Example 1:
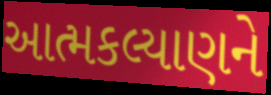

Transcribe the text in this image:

આત્મકલ્યાણને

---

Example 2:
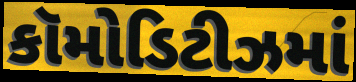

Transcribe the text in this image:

કૉમોડિટીઝમાં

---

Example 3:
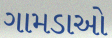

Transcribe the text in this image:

ગામડાઓ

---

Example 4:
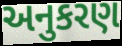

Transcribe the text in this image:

અનુકરણ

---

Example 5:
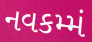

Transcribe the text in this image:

નવકમ્મં